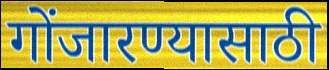
गोंजारण्यासाठी